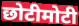
छोटीमोटी